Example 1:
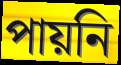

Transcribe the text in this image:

পায়নি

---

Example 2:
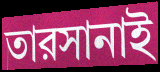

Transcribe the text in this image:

তারসানাই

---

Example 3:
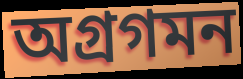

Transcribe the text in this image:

অগ্রগমন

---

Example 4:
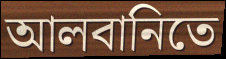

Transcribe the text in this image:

আলবানিতে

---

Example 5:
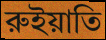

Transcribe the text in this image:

রুইয়াতি